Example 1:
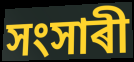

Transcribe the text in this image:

সংসাৰী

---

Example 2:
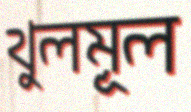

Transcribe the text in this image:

থুলমূল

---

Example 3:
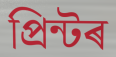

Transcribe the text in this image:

প্ৰিন্টৰ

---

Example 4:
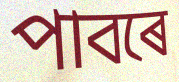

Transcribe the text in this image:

পাবৰে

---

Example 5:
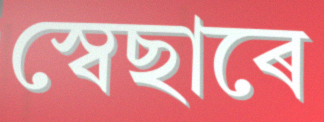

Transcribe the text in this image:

স্বেছাৰে